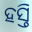
ହସ୍ତି